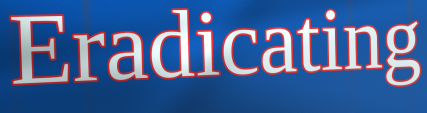
Eradicating